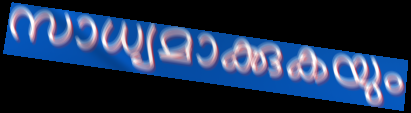
സാധ്യമാക്കുകയും